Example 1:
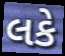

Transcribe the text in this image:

લકે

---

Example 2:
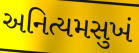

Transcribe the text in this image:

અનિત્યમસુખં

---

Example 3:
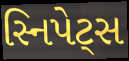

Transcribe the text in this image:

સ્નિપેટ્સ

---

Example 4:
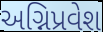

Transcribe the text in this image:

અગ્નિપ્રવેશ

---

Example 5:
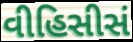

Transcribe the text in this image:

વીહિસીસં